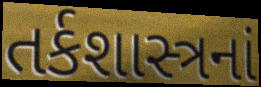
તર્કશાસ્ત્રનાં